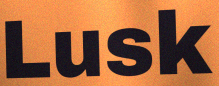
Lusk